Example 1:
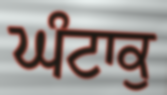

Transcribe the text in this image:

ਘੰਟਾਕੁ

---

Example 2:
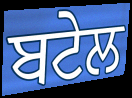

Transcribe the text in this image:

ਬਟੇਲ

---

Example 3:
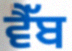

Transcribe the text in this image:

ਵੈੱਬ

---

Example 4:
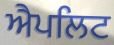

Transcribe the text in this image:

ਐਪਲਿਟ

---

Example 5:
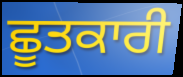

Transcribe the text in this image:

ਛੂਤਕਾਰੀ